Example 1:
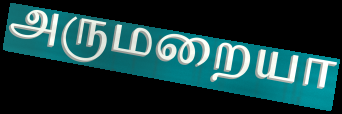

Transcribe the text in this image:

அருமறையா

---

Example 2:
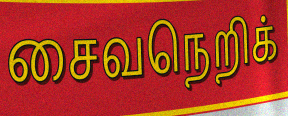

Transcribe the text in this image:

சைவநெறிக்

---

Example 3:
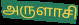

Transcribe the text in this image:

அருளாசி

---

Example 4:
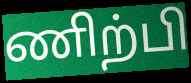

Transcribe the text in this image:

ணிற்பி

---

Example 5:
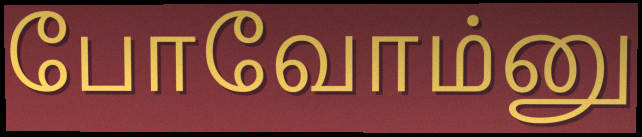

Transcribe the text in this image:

போவோம்னு